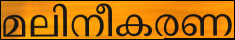
മലിനീകരണ